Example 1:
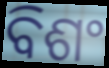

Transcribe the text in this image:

ବିଶଂ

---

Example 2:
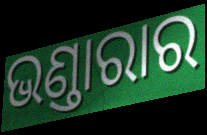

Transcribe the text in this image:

ଭଣ୍ଡାରାର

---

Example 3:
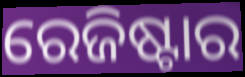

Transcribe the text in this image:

ରେଜିଷ୍ଟାର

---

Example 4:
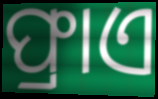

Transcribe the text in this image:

ଫ୍ରାଏ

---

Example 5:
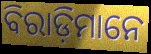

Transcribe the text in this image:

ବିରାଡ଼ିମାନେ